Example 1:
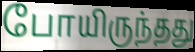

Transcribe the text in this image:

போயிருந்தது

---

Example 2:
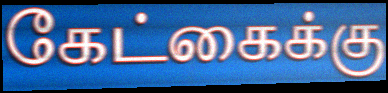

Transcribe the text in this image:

கேட்கைக்கு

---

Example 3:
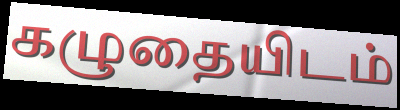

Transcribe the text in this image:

கழுதையிடம்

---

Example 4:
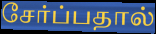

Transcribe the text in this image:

சேர்ப்பதால்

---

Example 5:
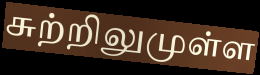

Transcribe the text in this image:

சுற்றிலுமுள்ள